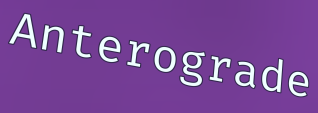
Anterograde